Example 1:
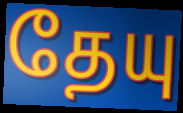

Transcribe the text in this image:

தேயு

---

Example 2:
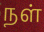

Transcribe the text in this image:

நள்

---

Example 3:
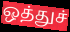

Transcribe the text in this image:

ஒத்துச்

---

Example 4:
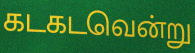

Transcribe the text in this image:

கடகடவென்று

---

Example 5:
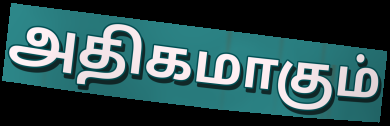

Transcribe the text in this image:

அதிகமாகும்